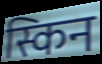
स्किन